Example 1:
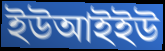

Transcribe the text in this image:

ইউআইইউ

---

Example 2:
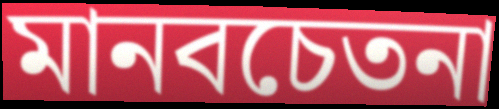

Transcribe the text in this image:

মানবচেতনা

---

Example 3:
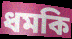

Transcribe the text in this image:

ধমকি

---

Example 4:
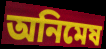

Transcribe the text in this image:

অনিমেষ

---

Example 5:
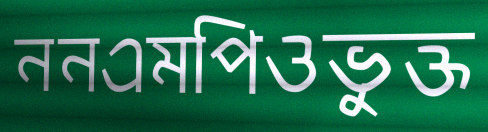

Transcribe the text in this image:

ননএমপিওভুক্ত